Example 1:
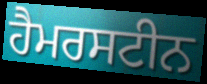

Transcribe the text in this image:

ਹੈਮਰਸਟੀਨ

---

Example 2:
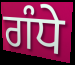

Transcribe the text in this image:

ਗੰਧੇ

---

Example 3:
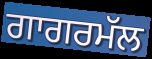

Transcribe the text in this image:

ਗਾਗਰਮੱਲ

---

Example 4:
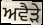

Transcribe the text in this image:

ਅਵੈੜੇ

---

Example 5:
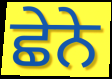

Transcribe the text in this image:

ਛੇਨੇ